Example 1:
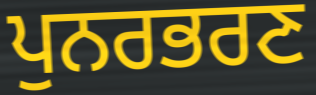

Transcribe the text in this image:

ਪੁਨਰਭਰਣ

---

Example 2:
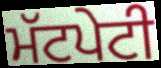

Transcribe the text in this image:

ਮੱਟਪੇਟੀ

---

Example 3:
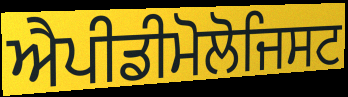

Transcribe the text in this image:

ਐਪੀਡੀਮੋਲੋਜਿਸਟ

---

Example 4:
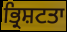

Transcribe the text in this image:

ਭ੍ਰਿਸ਼ਟਤਾ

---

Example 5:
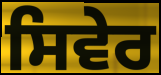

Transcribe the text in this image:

ਸਿਵੇਰ